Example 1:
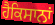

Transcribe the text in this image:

ਹੈਕਿਸਾਨਾਂ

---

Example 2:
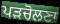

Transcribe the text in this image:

ਪੜਚੋਲਣਾ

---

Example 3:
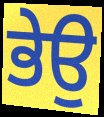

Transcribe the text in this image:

ਭੇਉ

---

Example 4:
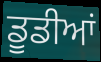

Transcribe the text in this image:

ਡੂਡੀਆਂ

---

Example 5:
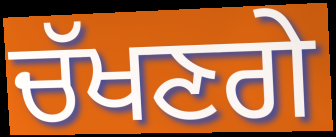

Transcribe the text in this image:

ਚੱਖਣਗੇ